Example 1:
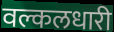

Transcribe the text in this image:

वल्कलधारी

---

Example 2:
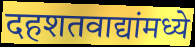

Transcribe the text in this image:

दहशतवाद्यांमध्ये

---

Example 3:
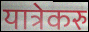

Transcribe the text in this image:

यात्रेकरु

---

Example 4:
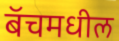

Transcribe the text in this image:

बॅचमधील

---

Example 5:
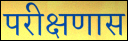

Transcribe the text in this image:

परीक्षणास